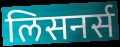
लिसनर्स